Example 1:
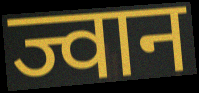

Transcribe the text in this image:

ज्वान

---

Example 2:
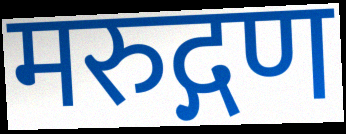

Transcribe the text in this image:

मरुद्गण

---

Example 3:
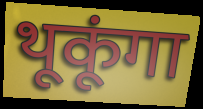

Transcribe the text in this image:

थूकूंगा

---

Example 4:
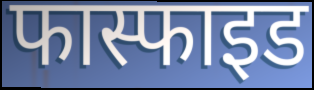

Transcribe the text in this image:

फास्फाइड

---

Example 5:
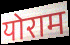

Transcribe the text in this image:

योराम